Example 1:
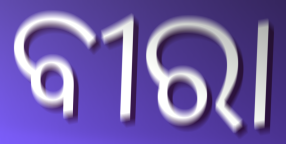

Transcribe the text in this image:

ବୀରା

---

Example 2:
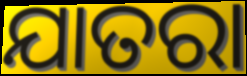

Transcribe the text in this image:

ଯାତରା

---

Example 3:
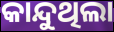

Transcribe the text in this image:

କାନ୍ଦୁଥିଲା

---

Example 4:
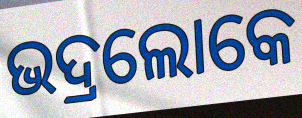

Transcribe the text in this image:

ଭଦ୍ରଲୋକେ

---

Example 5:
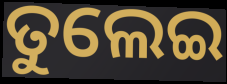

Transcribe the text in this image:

ତୁଲେଇ